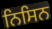
ਨਿਸਿਨ